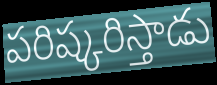
పరిష్కరిస్తాడు